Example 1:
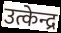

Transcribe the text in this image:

उत्केन्द्र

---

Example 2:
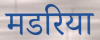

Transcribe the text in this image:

मडरिया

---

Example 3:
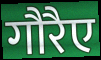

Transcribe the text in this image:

गौरैए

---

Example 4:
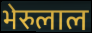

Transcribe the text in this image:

भेरुलाल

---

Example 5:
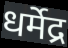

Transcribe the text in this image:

धर्मेद्र